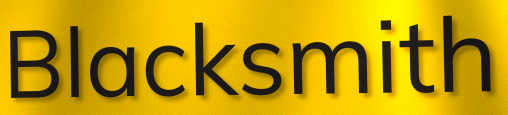
Blacksmith